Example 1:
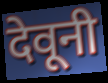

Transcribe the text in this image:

देवूनी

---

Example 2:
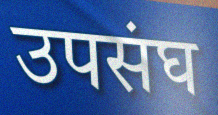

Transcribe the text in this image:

उपसंघ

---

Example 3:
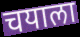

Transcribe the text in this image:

चयाला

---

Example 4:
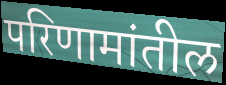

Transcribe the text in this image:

परिणामांतील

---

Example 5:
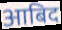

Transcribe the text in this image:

आबिद